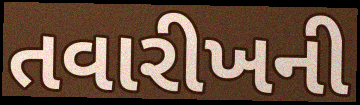
તવારીખની